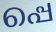
പ്പെ